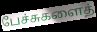
பேச்சுகளைத்